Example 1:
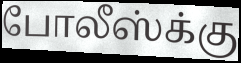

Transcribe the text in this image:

போலீஸ்க்கு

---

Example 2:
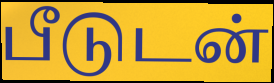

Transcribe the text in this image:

பீடுடன்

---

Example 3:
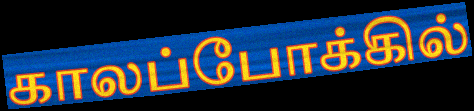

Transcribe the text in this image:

காலப்போக்கில்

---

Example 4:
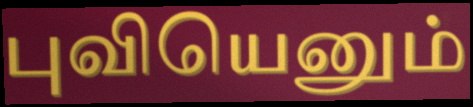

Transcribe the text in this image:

புவியெனும்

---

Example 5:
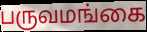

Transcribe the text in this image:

பருவமங்கை